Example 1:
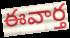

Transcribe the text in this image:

ఈవార్త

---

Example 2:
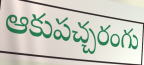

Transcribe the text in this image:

ఆకుపచ్చరంగు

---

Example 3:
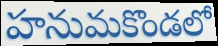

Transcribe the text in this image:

హనుమకొండలో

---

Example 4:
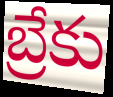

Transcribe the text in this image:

బ్రేకు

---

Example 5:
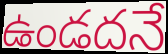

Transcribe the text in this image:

ఉండదనే